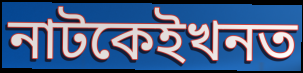
নাটকেইখনত